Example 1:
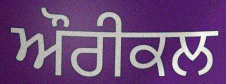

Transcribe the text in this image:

ਔਰੀਕਲ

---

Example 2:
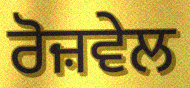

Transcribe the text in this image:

ਰੋਜ਼ਵੇਲ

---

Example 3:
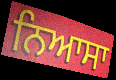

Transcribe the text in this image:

ਨਿਆਸਾ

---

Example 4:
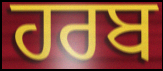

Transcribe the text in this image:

ਹਰਬ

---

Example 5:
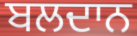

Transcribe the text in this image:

ਬਲਦਾਨ